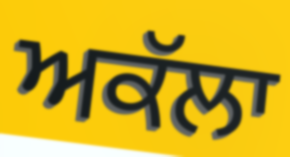
ਅਕੱਲਾ